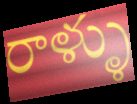
రాళ్ళు